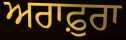
ਅਰਾਫ਼ੁਰਾ